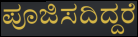
ಪೂಜಿಸದಿದ್ದರೆ